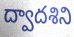
ద్వాదశిని